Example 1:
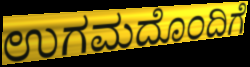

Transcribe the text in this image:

ಉಗಮದೊಂದಿಗೆ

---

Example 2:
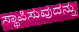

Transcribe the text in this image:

ಸ್ಥಾಪಿಸುವುದನ್ನು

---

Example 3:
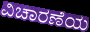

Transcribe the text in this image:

ವಿಚಾರಣೆಯ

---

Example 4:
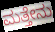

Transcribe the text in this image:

ಮತ್ತೇನು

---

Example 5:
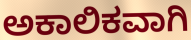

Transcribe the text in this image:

ಅಕಾಲಿಕವಾಗಿ